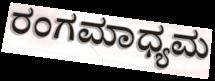
ರಂಗಮಾಧ್ಯಮ